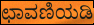
ಛಾವಣಿಯಡಿ